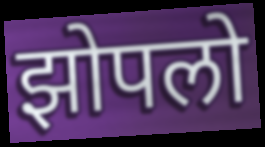
झोपलो